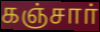
கஞ்சார்